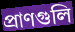
প্রাণগুলি